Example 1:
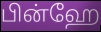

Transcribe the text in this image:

பின்ஹே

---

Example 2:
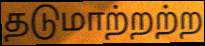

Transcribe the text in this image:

தடுமாற்றற்ற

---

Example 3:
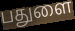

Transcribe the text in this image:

பதுளை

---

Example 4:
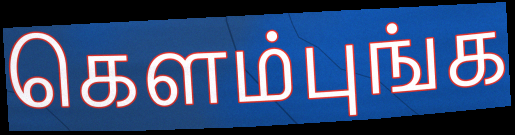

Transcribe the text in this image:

கெளம்புங்க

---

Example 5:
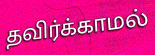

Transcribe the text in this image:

தவிர்க்காமல்